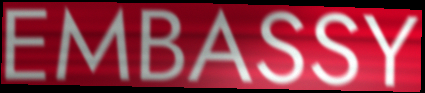
EMBASSY